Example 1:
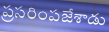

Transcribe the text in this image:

ప్రసరింపజేశాడు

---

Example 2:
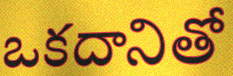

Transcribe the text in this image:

ఒకదానితో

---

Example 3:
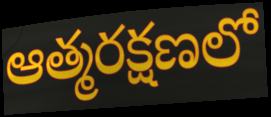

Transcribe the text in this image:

ఆత్మరక్షణలో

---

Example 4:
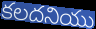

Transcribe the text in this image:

కలదనియు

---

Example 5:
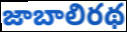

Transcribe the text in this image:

జాబాలిరథ